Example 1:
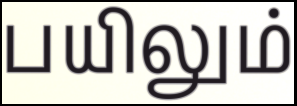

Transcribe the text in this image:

பயிலும்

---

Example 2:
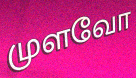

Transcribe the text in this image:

முளவோ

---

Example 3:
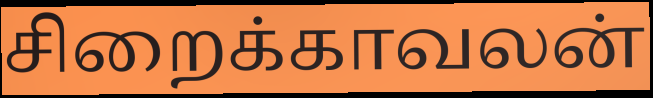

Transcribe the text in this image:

சிறைக்காவலன்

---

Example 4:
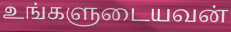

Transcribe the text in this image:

உங்களுடையவன்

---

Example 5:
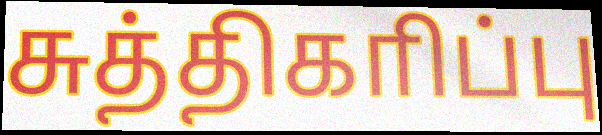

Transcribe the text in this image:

சுத்திகரிப்பு